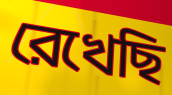
রেখেছি